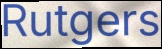
Rutgers